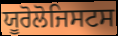
ਯੂਰੋਲੋਜਿਸਟਸ